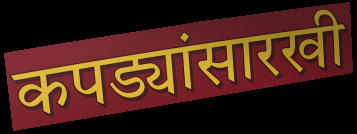
कपड्यांसारखी